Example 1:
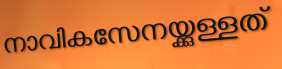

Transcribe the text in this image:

നാവികസേനയ്ക്കുള്ളത്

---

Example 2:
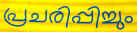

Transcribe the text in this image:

പ്രചരിപ്പിച്ചും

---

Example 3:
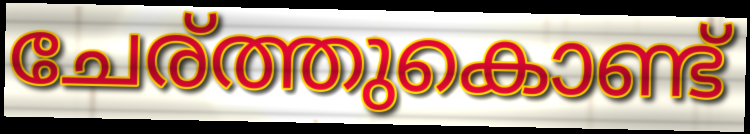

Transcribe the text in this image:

ചേര്ത്തുകൊണ്ട്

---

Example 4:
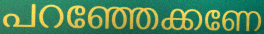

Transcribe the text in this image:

പറഞ്ഞേക്കണേ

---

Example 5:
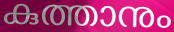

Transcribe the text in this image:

കുത്താനും